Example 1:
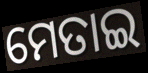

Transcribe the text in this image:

ମେତାଇ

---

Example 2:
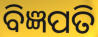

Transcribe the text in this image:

ବିଜ୍ଞପତି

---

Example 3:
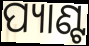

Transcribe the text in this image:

ପ୍ୟାଣ୍ଟ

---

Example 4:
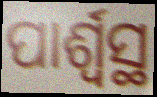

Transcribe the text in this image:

ପାର୍ଶ୍ବସ୍ଥ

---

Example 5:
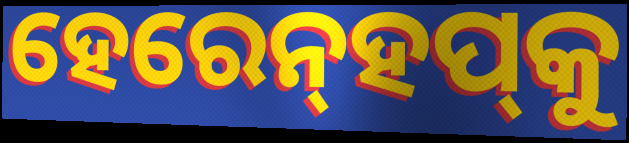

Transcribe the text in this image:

ହେରେନ୍‌ହପ୍‌କୁ